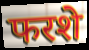
फरशे